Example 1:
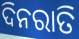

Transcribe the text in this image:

ଦିନରାତି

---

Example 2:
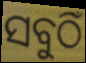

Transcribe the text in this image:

ସବୁଠିଁ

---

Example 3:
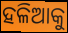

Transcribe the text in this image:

ହଳିଆକୁ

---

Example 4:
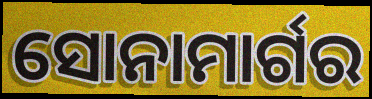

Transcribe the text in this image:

ସୋନାମାର୍ଗର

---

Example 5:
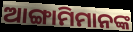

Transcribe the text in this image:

ଆଙ୍ଗାମିମାନଙ୍କ